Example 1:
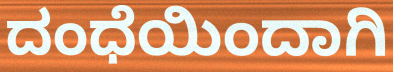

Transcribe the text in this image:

ದಂಧೆಯಿಂದಾಗಿ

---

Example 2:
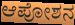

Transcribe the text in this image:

ಆಪೋಶನ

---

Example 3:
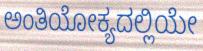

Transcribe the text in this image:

ಅಂತಿಯೋಕ್ಯದಲ್ಲಿಯೇ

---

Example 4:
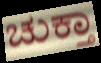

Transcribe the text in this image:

ಚುಕ್ತಾ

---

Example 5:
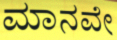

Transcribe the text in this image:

ಮಾನವೇ